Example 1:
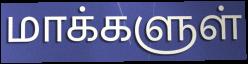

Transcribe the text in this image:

மாக்களுள்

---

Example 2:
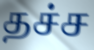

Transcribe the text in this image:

தச்ச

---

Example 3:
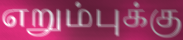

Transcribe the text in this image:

எறும்புக்கு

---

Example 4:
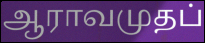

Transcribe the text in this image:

ஆராவமுதப்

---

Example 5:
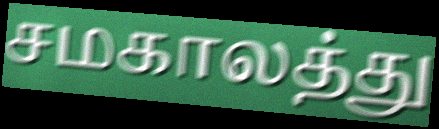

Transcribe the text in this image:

சமகாலத்து